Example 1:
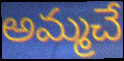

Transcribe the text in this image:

అమ్మచే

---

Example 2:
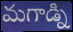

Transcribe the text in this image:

మగాడ్ని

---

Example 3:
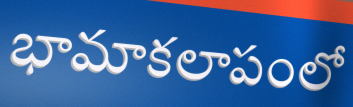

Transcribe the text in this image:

భామాకలాపంలో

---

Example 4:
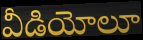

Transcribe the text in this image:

వీడియోలూ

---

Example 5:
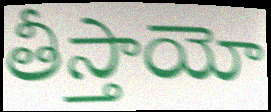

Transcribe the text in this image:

తీస్తాయో